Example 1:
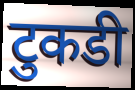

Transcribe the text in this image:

टुकडी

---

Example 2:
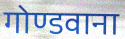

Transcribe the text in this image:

गोण्डवाना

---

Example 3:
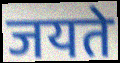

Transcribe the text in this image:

जयते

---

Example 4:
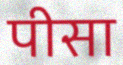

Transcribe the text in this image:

पीसा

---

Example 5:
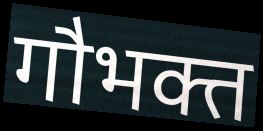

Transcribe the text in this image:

गौभक्त